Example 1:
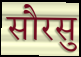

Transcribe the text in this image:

सौरसु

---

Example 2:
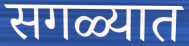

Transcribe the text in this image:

सगळ्यात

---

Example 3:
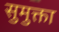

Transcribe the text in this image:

सुमुक्ता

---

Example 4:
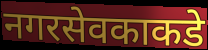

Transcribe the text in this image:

नगरसेवकाकडे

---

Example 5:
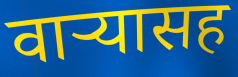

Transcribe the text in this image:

वार्‍यासह